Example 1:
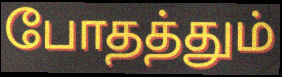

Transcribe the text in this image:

போதத்தும்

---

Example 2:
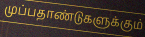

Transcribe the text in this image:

முப்பதாண்டுகளுக்கும்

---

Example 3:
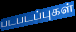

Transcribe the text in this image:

படபடப்புகள்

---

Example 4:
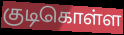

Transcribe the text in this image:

குடிகொள்ள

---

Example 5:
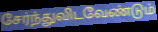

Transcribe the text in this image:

சேர்ந்துவிடவேண்டும்